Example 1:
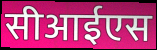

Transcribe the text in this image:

सीआईएस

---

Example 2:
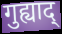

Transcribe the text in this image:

गुह्याद्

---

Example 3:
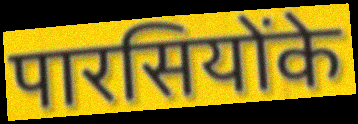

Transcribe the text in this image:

पारसियोंके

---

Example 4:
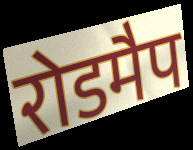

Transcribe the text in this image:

रोडमैप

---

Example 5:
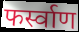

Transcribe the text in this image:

फर्स्वाण